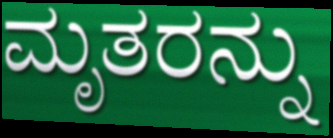
ಮೃತರನ್ನು